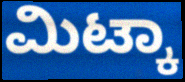
ಮಿಟ್ಕಾ